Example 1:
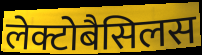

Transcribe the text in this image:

लेक्टोबैसिलस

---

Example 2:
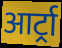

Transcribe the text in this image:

आर्ट्रा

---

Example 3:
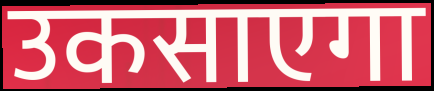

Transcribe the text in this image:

उकसाएगा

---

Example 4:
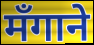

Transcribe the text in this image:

मँगाने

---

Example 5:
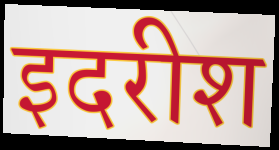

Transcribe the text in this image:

इदरीश